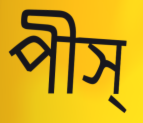
পীস্